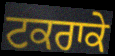
ਟਕਰਾਕੇ